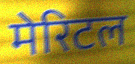
मेरिटल